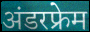
अंडरफ्रेम